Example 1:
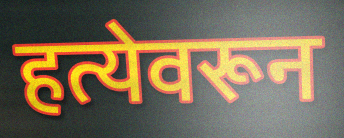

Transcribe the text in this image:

हत्येवरून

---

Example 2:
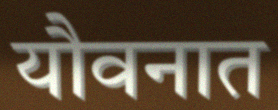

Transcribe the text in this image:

यौवनात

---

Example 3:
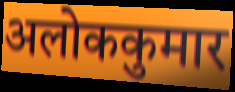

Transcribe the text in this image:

अलोककुमार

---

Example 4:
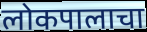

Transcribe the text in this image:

लोकपालाचा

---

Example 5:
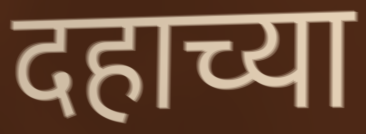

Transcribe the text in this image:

दहाच्या